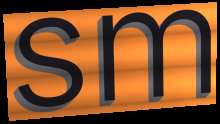
sm